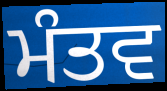
ਮੰਤਵ